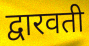
द्वारवती